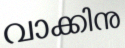
വാക്കിനു